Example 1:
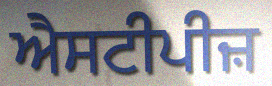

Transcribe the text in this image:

ਐਸਟੀਪੀਜ਼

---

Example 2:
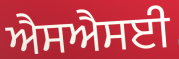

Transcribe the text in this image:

ਐਸਐਸਈ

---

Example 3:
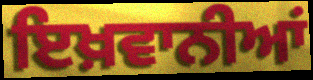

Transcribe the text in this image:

ਇਖ਼ਵਾਨੀਆਂ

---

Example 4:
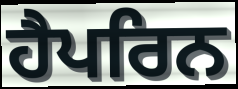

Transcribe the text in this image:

ਹੈਪਰਿਨ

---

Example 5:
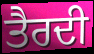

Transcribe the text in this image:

ਤੈਰਦੀ